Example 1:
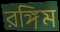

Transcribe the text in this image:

রঙ্গিম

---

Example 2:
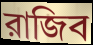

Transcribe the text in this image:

রাজিব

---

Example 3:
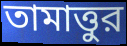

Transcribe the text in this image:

তামাত্তুর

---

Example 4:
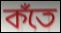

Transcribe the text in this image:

কঁতে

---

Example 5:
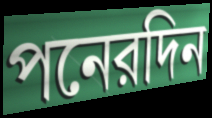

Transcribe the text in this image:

পনেরদিন